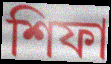
শিফা